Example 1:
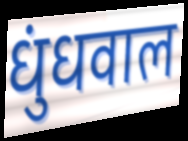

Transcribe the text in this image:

धुंधवाल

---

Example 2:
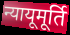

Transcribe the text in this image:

न्यायूमूर्ति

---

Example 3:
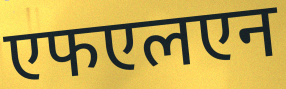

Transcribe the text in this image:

एफएलएन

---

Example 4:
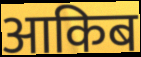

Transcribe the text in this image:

आकिब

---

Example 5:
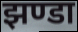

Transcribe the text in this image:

झण्डा